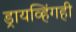
ड्रायव्हिंगही